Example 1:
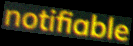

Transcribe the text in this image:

notifiable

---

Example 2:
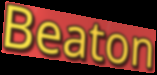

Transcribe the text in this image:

Beaton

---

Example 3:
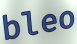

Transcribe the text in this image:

bleo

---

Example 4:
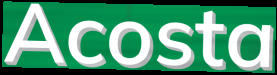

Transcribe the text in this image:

Acosta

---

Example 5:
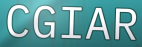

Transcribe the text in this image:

CGIAR